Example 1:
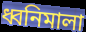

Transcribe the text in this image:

ধ্বনিমালা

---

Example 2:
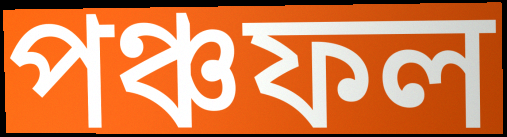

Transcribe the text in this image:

পঞ্চফল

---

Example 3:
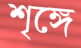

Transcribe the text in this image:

শৃঙ্গে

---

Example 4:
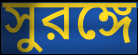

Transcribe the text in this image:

সুরঙ্গে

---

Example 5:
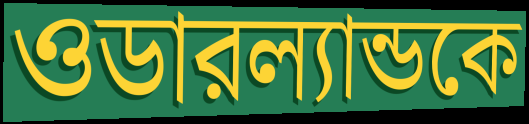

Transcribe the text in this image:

ওডারল্যান্ডকে